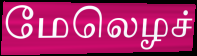
மேலெழச்